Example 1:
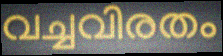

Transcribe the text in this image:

വച്ചവിരതം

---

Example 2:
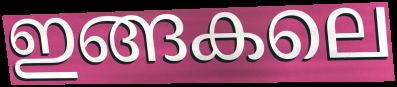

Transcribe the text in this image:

ഇങ്ങകലെ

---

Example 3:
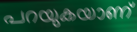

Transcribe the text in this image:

പറയുകയാണ്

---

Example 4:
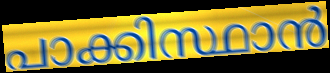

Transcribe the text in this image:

പാക്കിസ്ഥാൻ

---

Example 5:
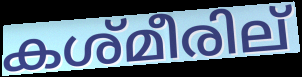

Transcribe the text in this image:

കശ്മീരില്